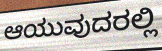
ಆಯುವುದರಲ್ಲಿ